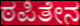
ಠಪಿತೇನ